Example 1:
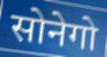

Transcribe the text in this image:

सोनेगो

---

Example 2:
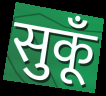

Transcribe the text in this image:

सुकूँ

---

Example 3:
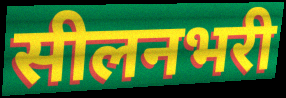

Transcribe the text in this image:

सीलनभरी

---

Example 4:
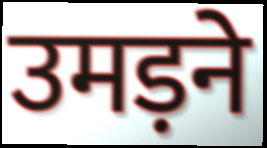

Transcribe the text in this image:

उमड़ने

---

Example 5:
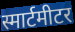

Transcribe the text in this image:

स्मार्टमीटर